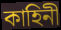
কাহিনী